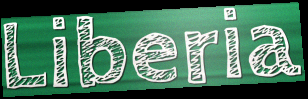
Liberia